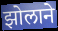
झोलाने